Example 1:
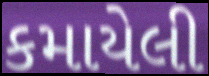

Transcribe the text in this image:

કમાયેલી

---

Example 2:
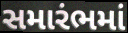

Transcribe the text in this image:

સમારંભમાં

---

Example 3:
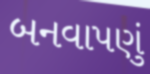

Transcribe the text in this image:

બનવાપણું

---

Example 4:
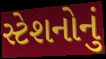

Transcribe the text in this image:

સ્ટેશનોનું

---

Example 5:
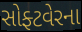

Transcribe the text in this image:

સોફ્ટવેરના